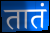
तातं